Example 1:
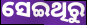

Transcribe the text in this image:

ସେଇଥିରୁ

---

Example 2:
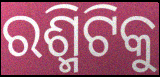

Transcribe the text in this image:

ରଶ୍ମିଟିକୁ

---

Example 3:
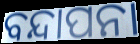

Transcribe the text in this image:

ବନ୍ଦାପନା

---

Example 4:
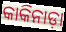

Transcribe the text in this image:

କାକିନାଡ଼ା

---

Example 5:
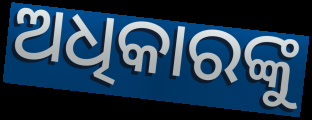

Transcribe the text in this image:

ଅଧିକାରଙ୍କୁ